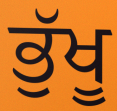
ਭੁੱਖੂ